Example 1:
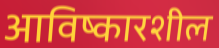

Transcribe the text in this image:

आविष्कारशील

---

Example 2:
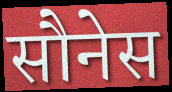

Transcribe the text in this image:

सौनेस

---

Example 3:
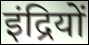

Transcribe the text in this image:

इंद्रियों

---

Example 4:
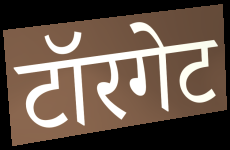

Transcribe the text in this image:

टॉरगेट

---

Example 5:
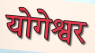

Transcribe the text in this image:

योगेश्वर